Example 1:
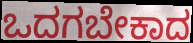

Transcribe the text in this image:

ಒದಗಬೇಕಾದ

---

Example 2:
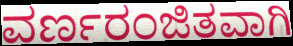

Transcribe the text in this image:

ವರ್ಣರಂಜಿತವಾಗಿ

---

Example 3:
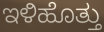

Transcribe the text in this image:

ಇಳಿಹೊತ್ತು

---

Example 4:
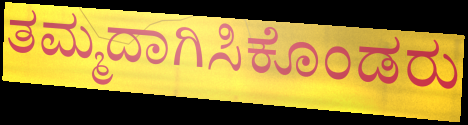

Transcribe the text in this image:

ತಮ್ಮದಾಗಿಸಿಕೊಂಡರು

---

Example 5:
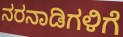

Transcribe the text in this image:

ನರನಾಡಿಗಳಿಗೆ